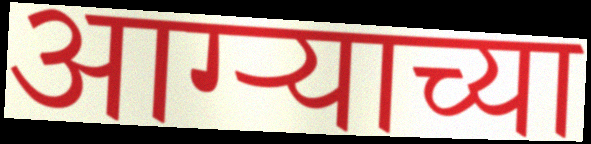
आग्ऱ्याच्या